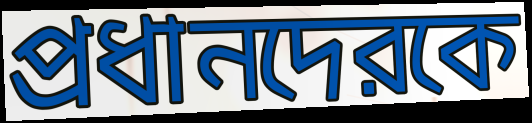
প্রধানদেরকে